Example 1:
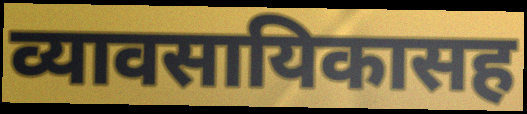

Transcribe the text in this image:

व्यावसायिकासह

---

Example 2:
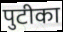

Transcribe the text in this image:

पुटीका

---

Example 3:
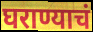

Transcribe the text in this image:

घराण्याचं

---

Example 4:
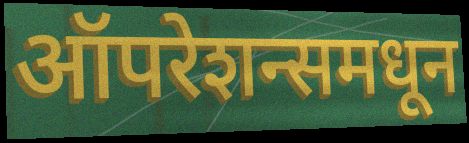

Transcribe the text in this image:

ऑपरेशन्समधून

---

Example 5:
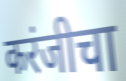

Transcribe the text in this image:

करंजीचा